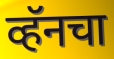
व्हॅनचा